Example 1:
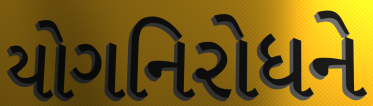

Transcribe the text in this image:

યોગનિરોધને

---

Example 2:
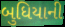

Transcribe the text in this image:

બુધિયાની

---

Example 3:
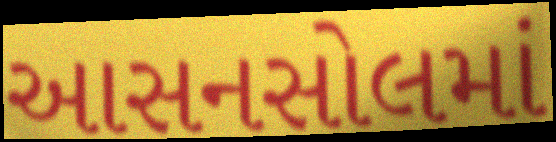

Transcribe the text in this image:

આસનસોલમાં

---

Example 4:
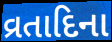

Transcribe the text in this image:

વ્રતાદિના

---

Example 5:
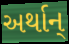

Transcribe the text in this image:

અર્થાન્